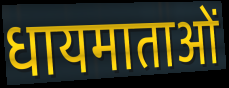
धायमाताओं